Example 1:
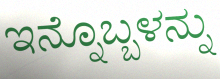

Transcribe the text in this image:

ಇನ್ನೊಬ್ಬಳನ್ನು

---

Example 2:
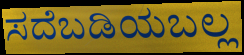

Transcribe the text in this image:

ಸದೆಬಡಿಯಬಲ್ಲ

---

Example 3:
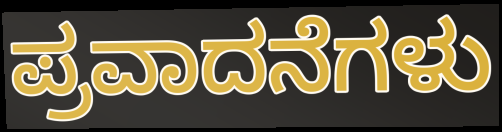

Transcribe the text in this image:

ಪ್ರವಾದನೆಗಳು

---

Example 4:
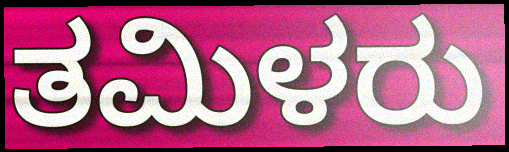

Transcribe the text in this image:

ತಮಿಳರು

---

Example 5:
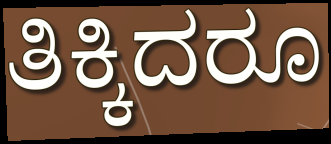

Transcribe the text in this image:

ತಿಕ್ಕಿದರೂ